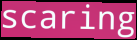
scaring